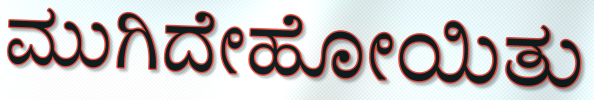
ಮುಗಿದೇಹೋಯಿತು